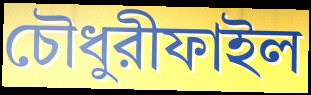
চৌধুরীফাইল